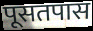
पूसतपास